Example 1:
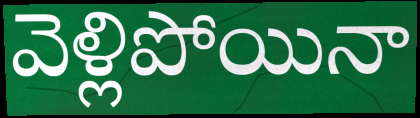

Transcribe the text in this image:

వెళ్లిపోయినా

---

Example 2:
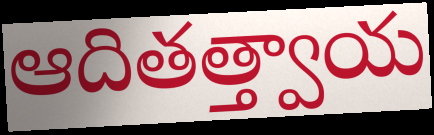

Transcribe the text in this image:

ఆదితత్త్వాయ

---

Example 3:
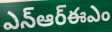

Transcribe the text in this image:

ఎన్ఆర్ఈఎం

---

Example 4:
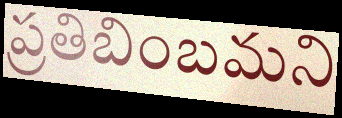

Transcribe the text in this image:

ప్రతిబింబమని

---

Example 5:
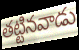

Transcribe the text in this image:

తట్టినవాడు